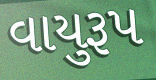
વાયુરૂપ